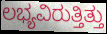
ಲಭ್ಯವಿರುತ್ತಿತ್ತು